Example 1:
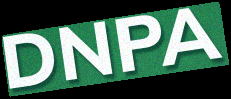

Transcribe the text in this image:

DNPA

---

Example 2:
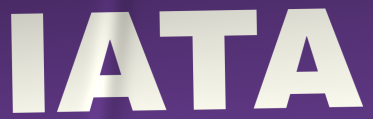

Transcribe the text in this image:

IATA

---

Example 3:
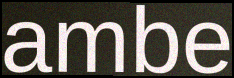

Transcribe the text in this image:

ambe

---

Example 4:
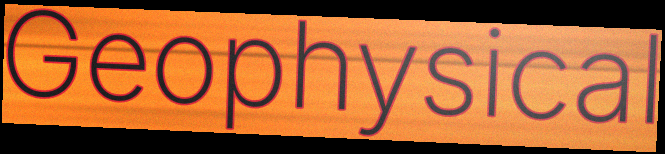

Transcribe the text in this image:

Geophysical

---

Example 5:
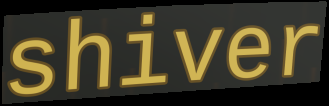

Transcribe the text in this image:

shiver